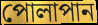
পোলাপান